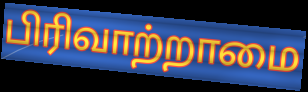
பிரிவாற்றாமை